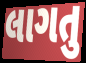
લાગતુ